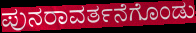
ಪುನರಾವರ್ತನೆಗೊಂಡು